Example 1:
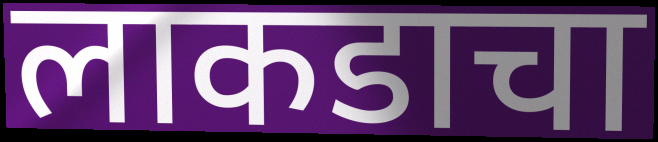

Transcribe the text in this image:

लाकडाचा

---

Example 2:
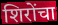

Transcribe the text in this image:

शिरोंचा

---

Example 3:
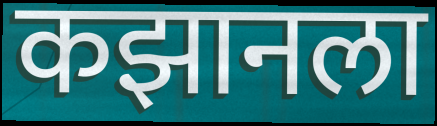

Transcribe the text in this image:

कझानला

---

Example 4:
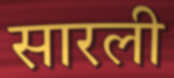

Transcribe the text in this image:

सारली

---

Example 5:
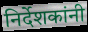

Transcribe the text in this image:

निर्देशकांनी